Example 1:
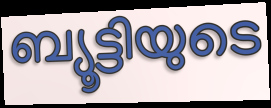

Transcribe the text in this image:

ബ്യൂട്ടിയുടെ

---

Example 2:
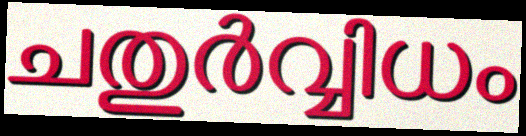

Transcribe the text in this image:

ചതുർവ്വിധം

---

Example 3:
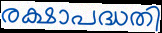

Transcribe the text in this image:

രക്ഷാപദ്ധതി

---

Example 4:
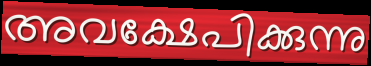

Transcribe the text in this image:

അവക്ഷേപിക്കുന്നു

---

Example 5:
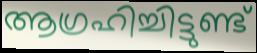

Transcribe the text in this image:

ആഗ്രഹിച്ചിട്ടുണ്ട്